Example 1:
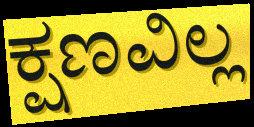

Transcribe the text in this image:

ಕ್ಷಣವಿಲ್ಲ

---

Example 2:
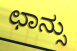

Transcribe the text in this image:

ಛಾನ್ಸು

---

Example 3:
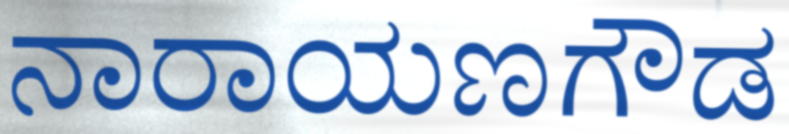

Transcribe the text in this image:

ನಾರಾಯಣಗೌಡ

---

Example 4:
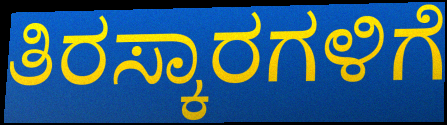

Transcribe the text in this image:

ತಿರಸ್ಕಾರಗಳಿಗೆ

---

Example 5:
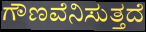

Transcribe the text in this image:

ಗೌಣವೆನಿಸುತ್ತದೆ